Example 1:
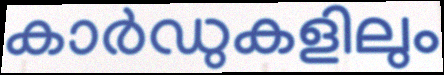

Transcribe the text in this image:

കാർഡുകളിലും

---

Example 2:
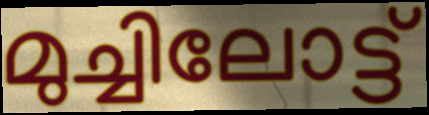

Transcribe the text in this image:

മുച്ചിലോട്ട്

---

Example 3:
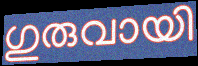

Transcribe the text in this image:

ഗുരുവായി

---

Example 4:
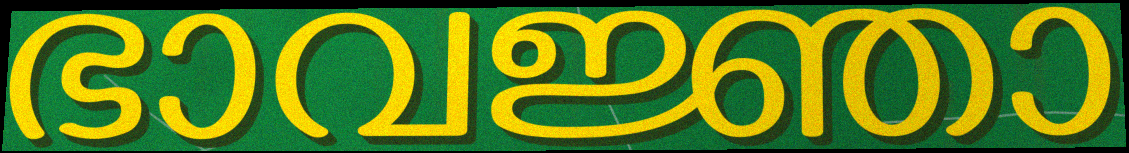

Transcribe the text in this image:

ഭാവജ്ഞാ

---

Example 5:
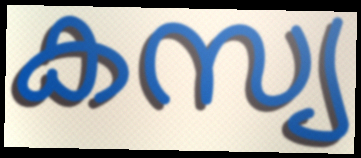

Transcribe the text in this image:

കസ്യ